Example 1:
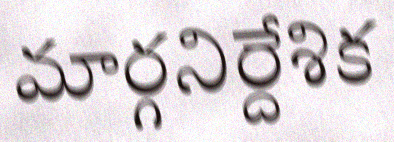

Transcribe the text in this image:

మార్గనిర్దేశిక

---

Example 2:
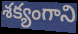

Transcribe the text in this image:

శక్యంగాని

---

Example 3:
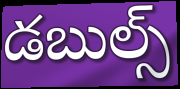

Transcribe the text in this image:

డబుల్స్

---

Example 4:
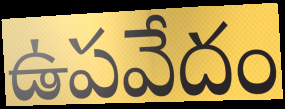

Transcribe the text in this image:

ఉపవేదం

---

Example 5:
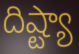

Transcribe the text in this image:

దిష్ట్యా